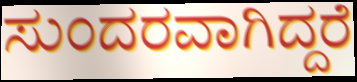
ಸುಂದರವಾಗಿದ್ದರೆ